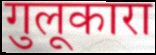
गुलूकारा